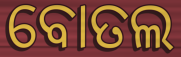
ବୋତଲ